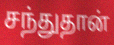
சந்துதான்